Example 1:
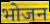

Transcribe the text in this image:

भोजन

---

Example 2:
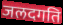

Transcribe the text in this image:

जलदगति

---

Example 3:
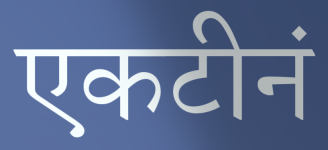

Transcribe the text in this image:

एकटीनं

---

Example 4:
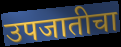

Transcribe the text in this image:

उपजातीचा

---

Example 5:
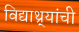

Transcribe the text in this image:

विद्याथ्र्यांची